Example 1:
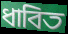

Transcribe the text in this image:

ধাবিত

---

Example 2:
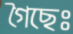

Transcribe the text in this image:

গৈছেঃ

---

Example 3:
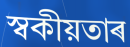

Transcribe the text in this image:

স্বকীয়তাৰ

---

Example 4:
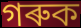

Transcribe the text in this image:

গৰুক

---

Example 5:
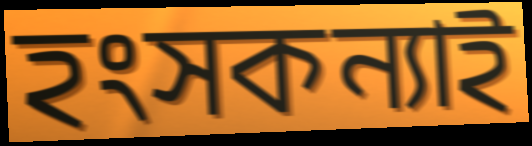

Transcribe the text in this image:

হংসকন্যাই